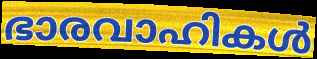
ഭാരവാഹികൾ